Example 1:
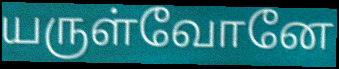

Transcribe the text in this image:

யருள்வோனே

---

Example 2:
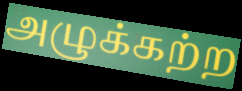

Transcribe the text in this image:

அழுக்கற்ற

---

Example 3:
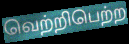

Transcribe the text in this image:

வெற்றிபெற்ற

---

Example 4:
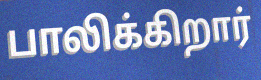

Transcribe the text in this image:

பாலிக்கிறார்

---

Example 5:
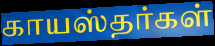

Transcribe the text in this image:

காயஸ்தர்கள்